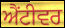
ਐਂਟੀਵਰ